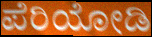
ಪೆರಿಯೋಡಿ